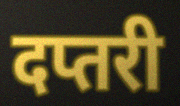
दप्तरी